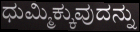
ಧುಮ್ಮಿಕ್ಕುವುದನ್ನು